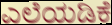
ಎಲೆಯಡಿಕೆ